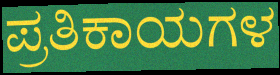
ಪ್ರತಿಕಾಯಗಳ